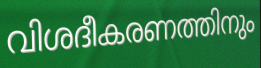
വിശദീകരണത്തിനും